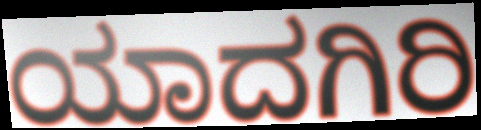
ಯಾದಗಿರಿ